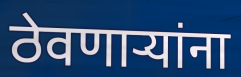
ठेवणार्‍यांना